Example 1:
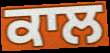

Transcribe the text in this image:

ਕਾਲ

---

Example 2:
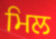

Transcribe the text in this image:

ਮਿਲ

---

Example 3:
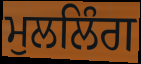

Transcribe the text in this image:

ਮੁਲਲਿੰਗ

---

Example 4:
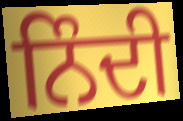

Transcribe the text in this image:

ਨਿੰਦੀ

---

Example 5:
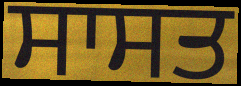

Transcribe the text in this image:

ਸਾਸਤ